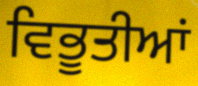
ਵਿਭੂਤੀਆਂ